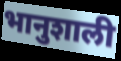
भानुशाली